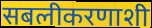
सबलीकरणाशी